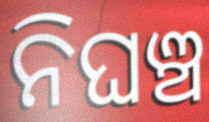
ନିଘଞ୍ଚ